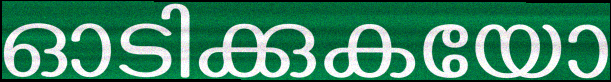
ഓടിക്കുകയോ